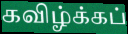
கவிழ்க்கப்